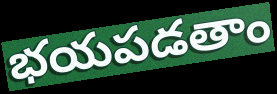
భయపడతాం